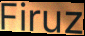
Firuz